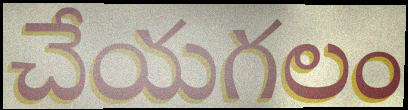
చేయగలం